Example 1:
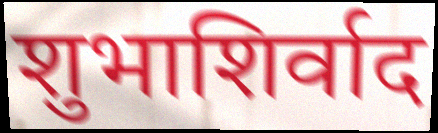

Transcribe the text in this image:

शुभाशिर्वाद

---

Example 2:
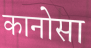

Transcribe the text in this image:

कानोसा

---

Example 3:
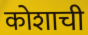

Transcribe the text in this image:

कोशाची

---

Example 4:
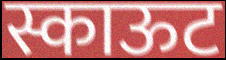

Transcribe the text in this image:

स्काऊट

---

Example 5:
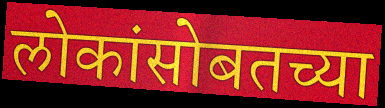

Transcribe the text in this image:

लोकांसोबतच्या